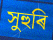
সুহুৰি